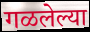
गळलेल्या